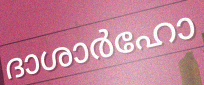
ദാശാർഹോ